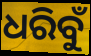
ଧରିବୁଁ